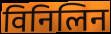
विनिलिन